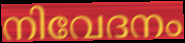
നിവേദനം